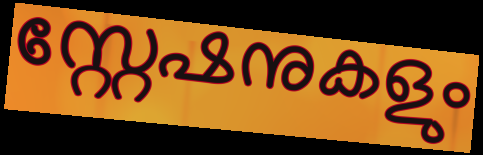
സ്റ്റേഷനുകളും